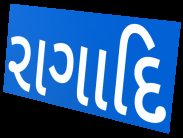
રાગાદિ